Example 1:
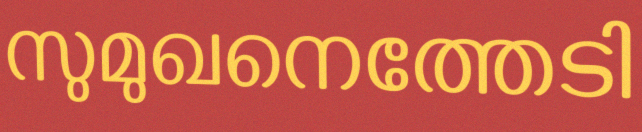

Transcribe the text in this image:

സുമുഖനെത്തേടി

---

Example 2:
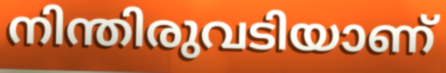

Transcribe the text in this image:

നിന്തിരുവടിയാണ്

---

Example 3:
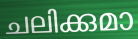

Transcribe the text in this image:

ചലിക്കുമാ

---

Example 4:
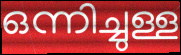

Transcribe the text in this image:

ഒന്നിച്ചുള്ള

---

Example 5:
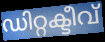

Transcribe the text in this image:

ഡിറ്റക്ടീവ്